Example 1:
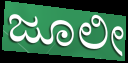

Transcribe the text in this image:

ಜೂಲೀ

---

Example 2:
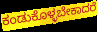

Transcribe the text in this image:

ಕಂಡುಕೊಳ್ಳಬೇಕಾದರೆ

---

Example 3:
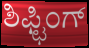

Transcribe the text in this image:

ಶಿಫ್ಟಿಂಗ್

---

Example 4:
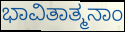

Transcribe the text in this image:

ಭಾವಿತಾತ್ಮನಾಂ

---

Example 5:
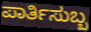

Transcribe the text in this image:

ಪಾರ್ತಿಸುಬ್ಬ